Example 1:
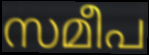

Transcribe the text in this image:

സമീപ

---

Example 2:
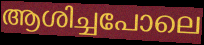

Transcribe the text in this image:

ആശിച്ചപോലെ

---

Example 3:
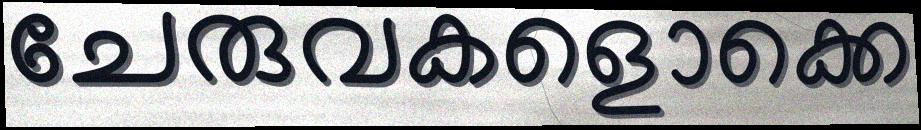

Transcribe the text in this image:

ചേരുവകളൊക്കെ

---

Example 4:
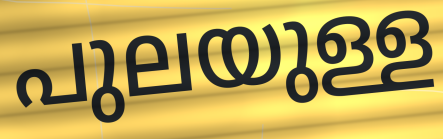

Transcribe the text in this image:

പുലയുള്ള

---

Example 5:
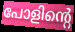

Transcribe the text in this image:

പോളിന്റെ